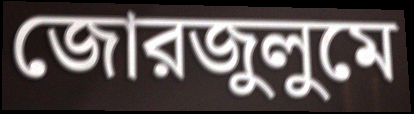
জোরজুলুমে